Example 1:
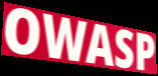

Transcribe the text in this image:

OWASP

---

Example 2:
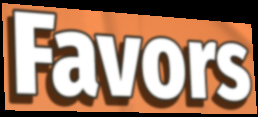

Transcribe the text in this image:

Favors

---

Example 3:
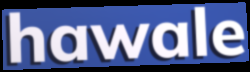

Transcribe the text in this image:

hawale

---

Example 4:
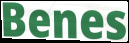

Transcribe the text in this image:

Benes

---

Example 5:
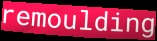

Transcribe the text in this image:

remoulding